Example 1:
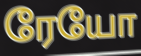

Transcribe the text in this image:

ரேயோ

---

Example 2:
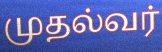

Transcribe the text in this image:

முதல்வர்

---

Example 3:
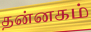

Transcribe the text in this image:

தன்னகம்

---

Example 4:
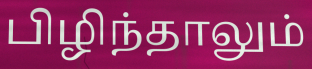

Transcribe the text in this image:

பிழிந்தாலும்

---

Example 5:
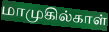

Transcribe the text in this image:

மாமுகில்காள்